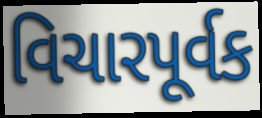
વિચારપૂર્વક